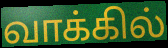
வாக்கில்